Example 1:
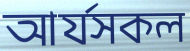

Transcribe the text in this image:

আৰ্যসকল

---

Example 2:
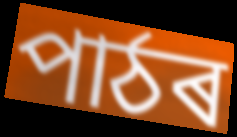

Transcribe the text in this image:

পাঠৰ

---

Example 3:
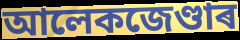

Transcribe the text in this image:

আলেকজেণ্ডাৰ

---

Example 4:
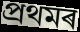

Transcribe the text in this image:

প্ৰথমৰ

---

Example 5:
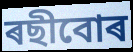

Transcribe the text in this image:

ৰছীবোৰ